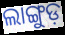
ଲାଙ୍ଗୁଡ଼